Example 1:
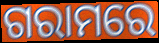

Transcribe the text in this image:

ଗରାମରେ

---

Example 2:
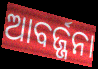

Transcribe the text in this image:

ଆବର୍ଜ୍ଜନା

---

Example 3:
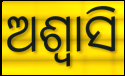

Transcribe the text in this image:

ଅଶ୍ୱାସି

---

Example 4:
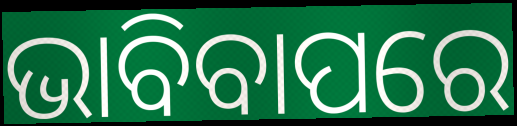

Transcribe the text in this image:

ଭାବିବାପରେ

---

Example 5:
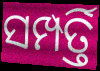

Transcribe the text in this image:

ସମ୍ପର୍ତ୍ତି